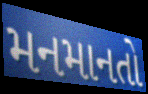
મનમાનતો